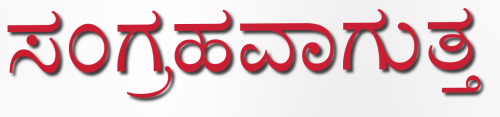
ಸಂಗ್ರಹವಾಗುತ್ತ